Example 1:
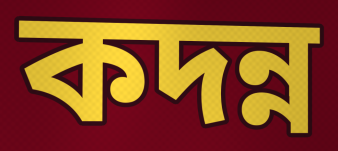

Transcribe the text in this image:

কদন্ন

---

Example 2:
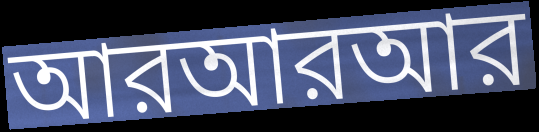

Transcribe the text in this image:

আরআরআর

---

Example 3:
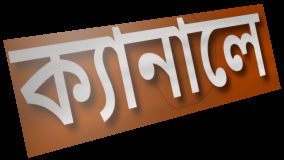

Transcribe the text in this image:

ক্যানালে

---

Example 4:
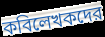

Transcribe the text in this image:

কবিলেখকদের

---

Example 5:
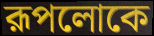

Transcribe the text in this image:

রূপলোকে